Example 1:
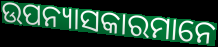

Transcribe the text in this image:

ଉପନ୍ୟାସକାରମାନେ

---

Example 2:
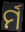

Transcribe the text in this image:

ର୍ମ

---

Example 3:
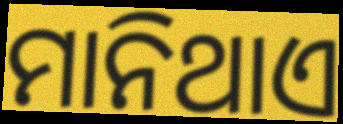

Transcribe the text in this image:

ମାନିଥାଏ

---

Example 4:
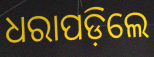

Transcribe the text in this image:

ଧରାପଡ଼ିଲେ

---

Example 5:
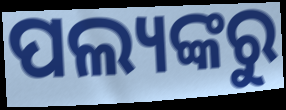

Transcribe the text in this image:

ପଲ୍ୟଙ୍କରୁ